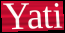
Yati